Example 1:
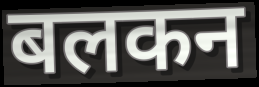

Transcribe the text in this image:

बलकन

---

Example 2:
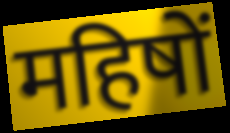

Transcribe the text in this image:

महिषों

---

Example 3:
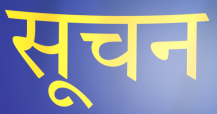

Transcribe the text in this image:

सूचन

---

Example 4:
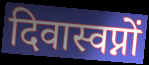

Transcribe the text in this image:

दिवास्वप्नों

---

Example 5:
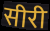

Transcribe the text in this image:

सीरी